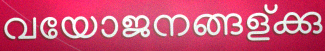
വയോജനങ്ങള്ക്കു